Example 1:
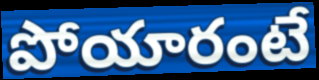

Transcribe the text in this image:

పోయారంటే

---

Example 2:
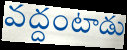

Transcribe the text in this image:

వద్దంటాడు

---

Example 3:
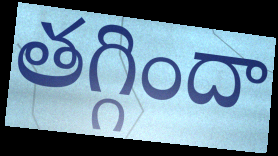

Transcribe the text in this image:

తగ్గిందా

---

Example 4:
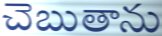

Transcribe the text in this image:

చెబుతాను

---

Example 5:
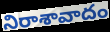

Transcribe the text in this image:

నిరాశావాదం